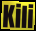
Kili